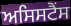
ਅਸਿਸਟੈਂਸ